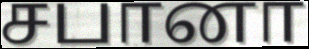
சபானா